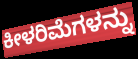
ಕೀಳರಿಮೆಗಳನ್ನು